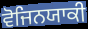
ਵੋਜਿਨਯਾਕੀ